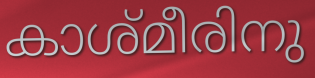
കാശ്മീരിനു